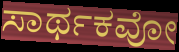
ಸಾರ್ಥಕವೋ